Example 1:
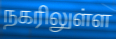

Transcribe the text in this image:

நகரிலுள்ள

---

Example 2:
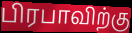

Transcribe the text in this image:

பிரபாவிற்கு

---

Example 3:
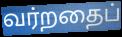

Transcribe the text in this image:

வர்றதைப்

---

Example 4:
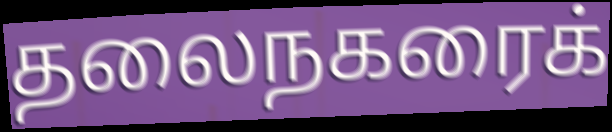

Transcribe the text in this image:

தலைநகரைக்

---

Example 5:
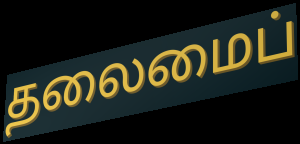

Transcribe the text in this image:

தலைமைப்